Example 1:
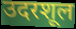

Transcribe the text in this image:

उदरशूल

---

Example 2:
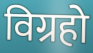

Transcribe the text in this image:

विग्रहो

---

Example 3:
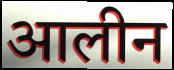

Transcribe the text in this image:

आलीन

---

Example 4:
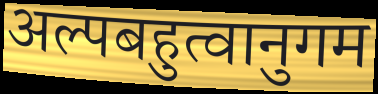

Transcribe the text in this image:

अल्पबहुत्वानुगम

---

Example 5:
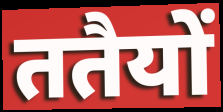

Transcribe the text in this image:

ततैयों